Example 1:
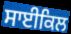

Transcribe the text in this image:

ਸਾਈਕਿਲ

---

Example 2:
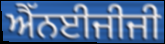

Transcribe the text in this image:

ਐੱਨਈਜੀਜੀ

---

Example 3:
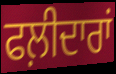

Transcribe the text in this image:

ਫਲ਼ੀਦਾਰਾਂ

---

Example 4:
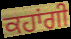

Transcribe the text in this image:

ਕਹਾਂਗੀ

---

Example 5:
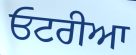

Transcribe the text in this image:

ਓਟਰੀਆ